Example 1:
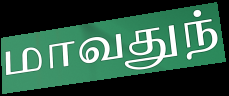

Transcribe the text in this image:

மாவதுந்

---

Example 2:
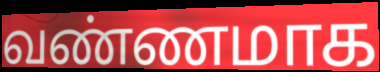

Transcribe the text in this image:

வண்ணமாக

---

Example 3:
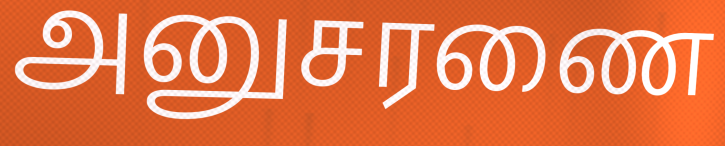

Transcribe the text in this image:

அனுசரணை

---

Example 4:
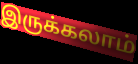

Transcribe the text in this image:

இருக்கலாம்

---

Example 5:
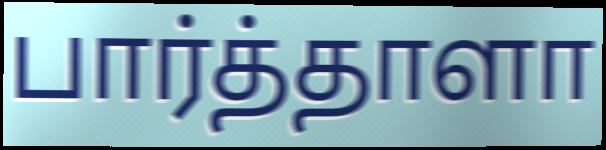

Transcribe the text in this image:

பார்த்தாளா